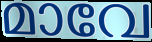
മാവേ